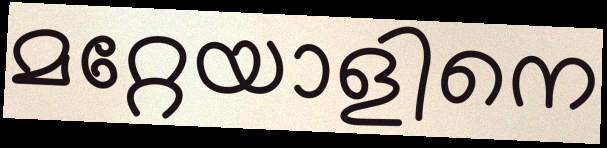
മറ്റേയാളിനെ